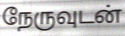
நேருவுடன்